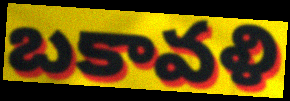
బకావళి